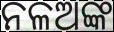
ନଳଅଙ୍କ